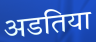
अडतिया